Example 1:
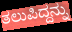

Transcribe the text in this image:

ತಲುಪಿದ್ದನ್ನು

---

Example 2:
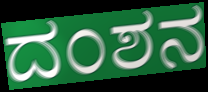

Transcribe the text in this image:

ದಂಶನ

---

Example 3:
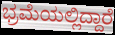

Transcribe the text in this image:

ಭ್ರಮೆಯಲ್ಲಿದ್ದಾರೆ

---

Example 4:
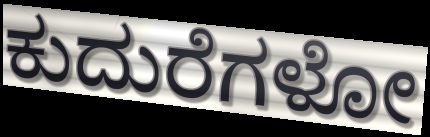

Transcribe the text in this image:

ಕುದುರೆಗಳೋ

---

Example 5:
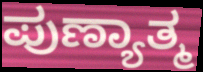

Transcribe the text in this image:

ಪುಣ್ಯಾತ್ಮ